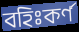
বহিঃকর্ণ